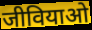
जीवियाओ